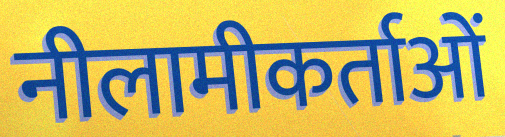
नीलामीकर्ताओं